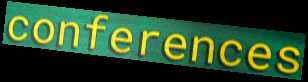
conferences